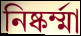
নিষ্কর্ম্মা